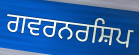
ਗਵਰਨਰਸ਼ਿਪ